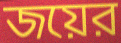
জয়ের